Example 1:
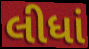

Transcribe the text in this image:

લીધાં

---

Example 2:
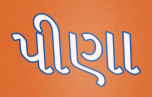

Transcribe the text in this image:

પીણા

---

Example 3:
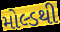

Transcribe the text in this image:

મોલ્ડથી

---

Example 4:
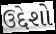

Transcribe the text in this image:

ઉદ્દેશો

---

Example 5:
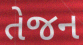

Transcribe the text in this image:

તેજન